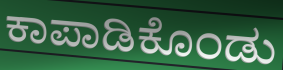
ಕಾಪಾಡಿಕೊಂಡು